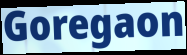
Goregaon